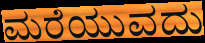
ಮರೆಯುವದು